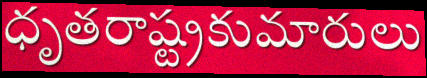
ధృతరాష్ట్రకుమారులు